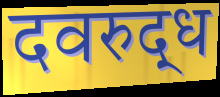
दवरुद्ध